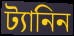
ট্যানিন